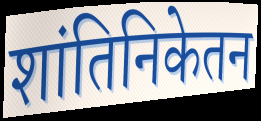
शांतिनिकेतन